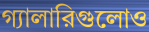
গ্যালারিগুলোও